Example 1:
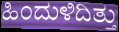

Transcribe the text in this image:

ಹಿಂದುಳಿದಿತ್ತು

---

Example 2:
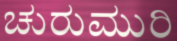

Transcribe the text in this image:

ಚುರುಮುರಿ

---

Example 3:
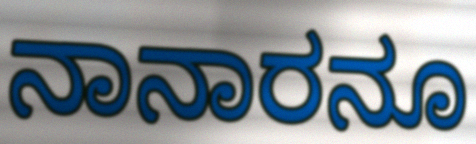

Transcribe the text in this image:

ನಾನಾರನೂ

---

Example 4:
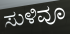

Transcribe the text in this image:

ಸುಳಿವೂ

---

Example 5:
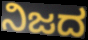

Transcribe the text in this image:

ನಿಜದ